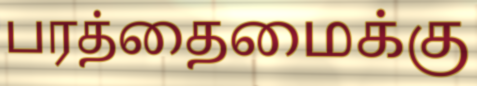
பரத்தைமைக்கு